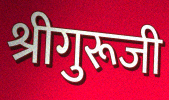
श्रीगुरूजी